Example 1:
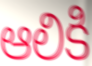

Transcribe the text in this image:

ఆలికి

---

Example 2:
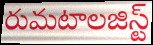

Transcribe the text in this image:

రుమటాలజిస్ట్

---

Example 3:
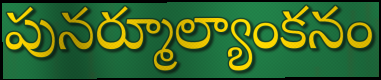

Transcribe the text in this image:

పునర్మూల్యాంకనం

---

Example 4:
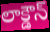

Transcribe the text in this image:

లాక్డౌన్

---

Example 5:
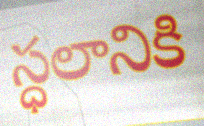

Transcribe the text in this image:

స్ధలానికి